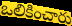
ఒలికించారు